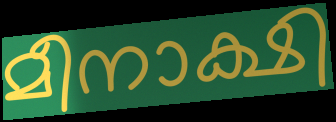
മീനാക്ഷി